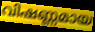
വിഷണ്ണമായ